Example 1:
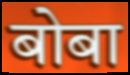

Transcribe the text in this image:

बोबा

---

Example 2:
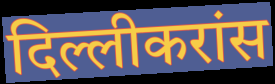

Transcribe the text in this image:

दिल्लीकरांस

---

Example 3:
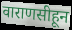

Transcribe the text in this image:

वाराणसीहून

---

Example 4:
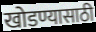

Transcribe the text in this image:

खोडण्यासाठी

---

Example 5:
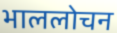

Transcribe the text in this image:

भाललोचन